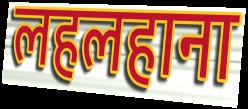
लहलहाना